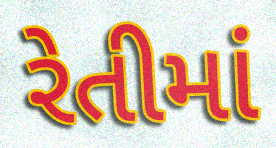
રેતીમાં